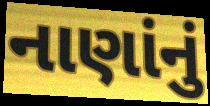
નાણાંનું